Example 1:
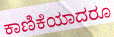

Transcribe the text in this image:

ಕಾಣಿಕೆಯಾದರೂ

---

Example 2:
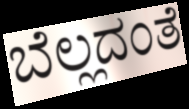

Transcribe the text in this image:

ಬೆಲ್ಲದಂತೆ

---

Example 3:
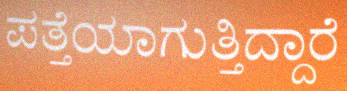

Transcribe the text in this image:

ಪತ್ತೆಯಾಗುತ್ತಿದ್ದಾರೆ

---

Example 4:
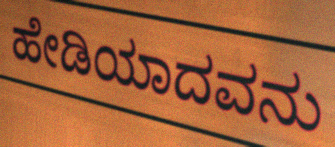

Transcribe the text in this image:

ಹೇಡಿಯಾದವನು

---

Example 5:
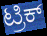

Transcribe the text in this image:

ಟ್ರಿಕ್